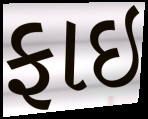
ફાઇ